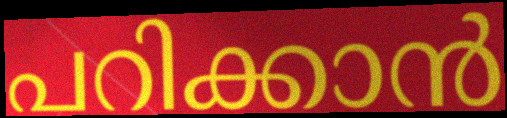
പറിക്കാൻ